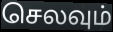
செலவும்